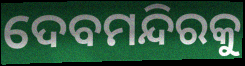
ଦେବମନ୍ଦିରକୁ